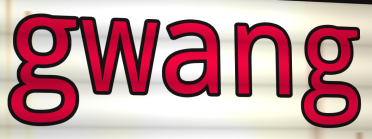
gwang